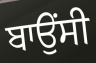
ਬਾਉਂਸੀ